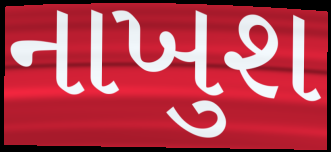
નાખુશ